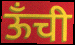
ऊँची